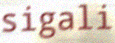
sigali